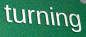
turning